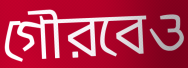
গৌরবেও